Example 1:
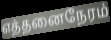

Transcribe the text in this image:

எத்தனைநேரம்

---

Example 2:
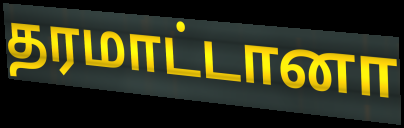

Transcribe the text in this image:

தரமாட்டானா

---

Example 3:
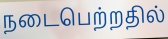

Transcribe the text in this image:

நடைபெற்றதில்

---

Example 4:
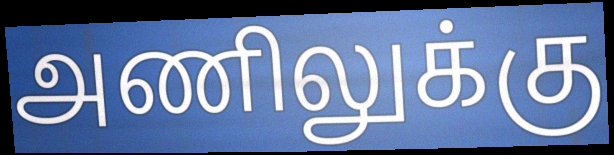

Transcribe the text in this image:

அணிலுக்கு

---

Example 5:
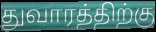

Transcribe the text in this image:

துவாரத்திற்கு